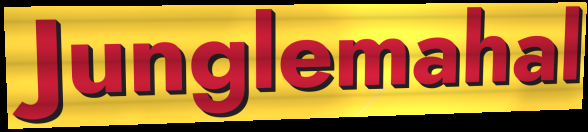
Junglemahal